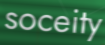
soceity